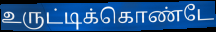
உருட்டிக்கொண்டே